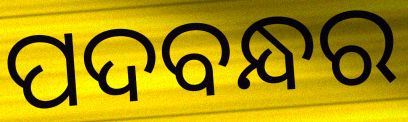
ପଦବନ୍ଧର